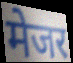
मेजर